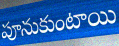
పూనుకుంటాయి